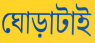
ঘোড়াটাই